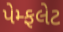
પેમ્ફલેટ